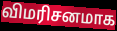
விமரிசனமாக